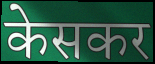
केसकर